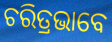
ଚରିତ୍ରଭାବେ